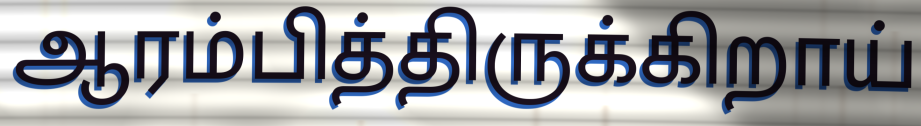
ஆரம்பித்திருக்கிறாய்